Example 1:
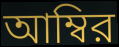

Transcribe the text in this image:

আম্বির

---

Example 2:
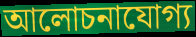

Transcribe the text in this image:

আলোচনাযোগ্য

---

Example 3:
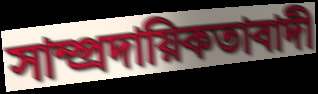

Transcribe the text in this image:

সাম্প্রদায়িকতাবাদী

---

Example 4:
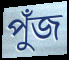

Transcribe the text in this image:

পুঁজ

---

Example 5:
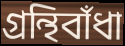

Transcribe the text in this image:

গ্রন্থিবাঁধা